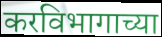
करविभागाच्या